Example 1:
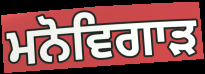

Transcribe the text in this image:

ਮਨੋਵਿਗਾੜ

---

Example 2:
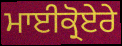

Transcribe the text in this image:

ਮਾਈਕ੍ਰੋਏਰੇ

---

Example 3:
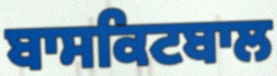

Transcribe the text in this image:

ਬਾਸਕਿਟਬਾਲ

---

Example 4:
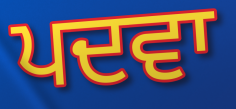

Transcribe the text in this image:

ਪਦਵਾ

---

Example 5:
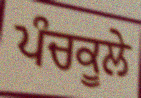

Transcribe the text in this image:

ਪੰਚਕੂਲੇ